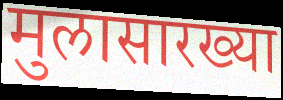
मुलासारख्या